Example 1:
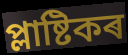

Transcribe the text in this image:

প্লাষ্টিকৰ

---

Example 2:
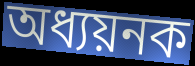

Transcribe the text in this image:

অধ্যয়নক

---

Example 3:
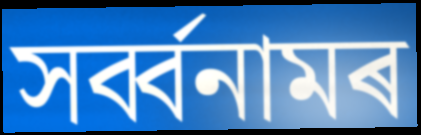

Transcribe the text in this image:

সৰ্ব্বনামৰ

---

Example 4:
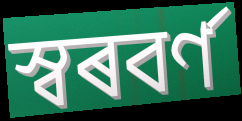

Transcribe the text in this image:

স্বৰবৰ্ণ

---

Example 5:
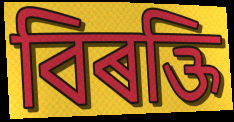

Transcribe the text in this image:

বিৰক্তি